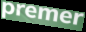
premer